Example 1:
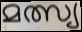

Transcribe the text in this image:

മത്സ്യ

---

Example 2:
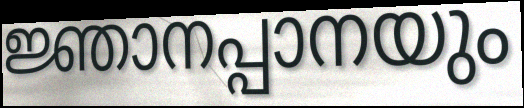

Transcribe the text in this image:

ജ്ഞാനപ്പാനയും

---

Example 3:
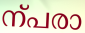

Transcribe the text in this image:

ന്പരാ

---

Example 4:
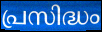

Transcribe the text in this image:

പ്രസിദ്ധം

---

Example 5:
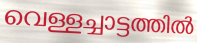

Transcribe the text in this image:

വെള്ളച്ചാട്ടത്തിൽ